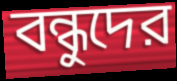
বন্ধুদের